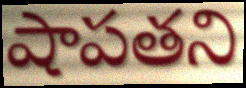
షాపతని